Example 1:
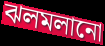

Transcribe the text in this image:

ঝলমলানো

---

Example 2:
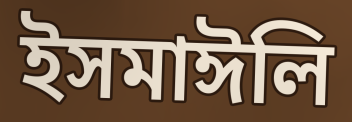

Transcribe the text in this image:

ইসমাঈলি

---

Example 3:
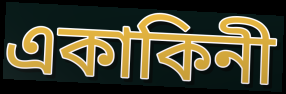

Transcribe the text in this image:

একাকিনী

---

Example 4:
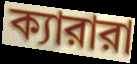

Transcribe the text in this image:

ক্যারারা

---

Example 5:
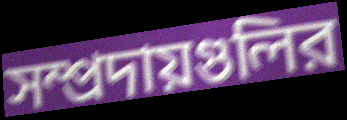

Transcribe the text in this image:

সম্প্রদায়গুলির